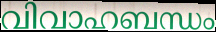
വിവാഹബന്ധം